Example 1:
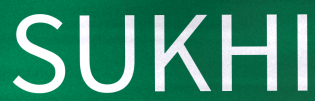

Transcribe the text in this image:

SUKHI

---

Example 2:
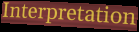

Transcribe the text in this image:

Interpretation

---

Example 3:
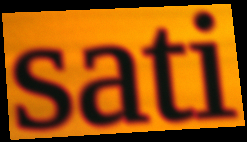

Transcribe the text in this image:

sati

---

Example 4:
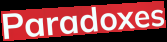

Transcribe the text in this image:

Paradoxes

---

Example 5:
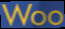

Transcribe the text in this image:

Woo